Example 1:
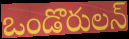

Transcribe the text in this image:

ఒండొరులన్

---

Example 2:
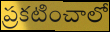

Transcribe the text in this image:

ప్రకటించాలో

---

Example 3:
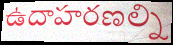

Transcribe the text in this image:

ఉదాహరణల్ని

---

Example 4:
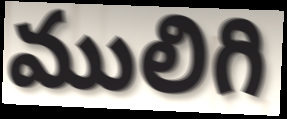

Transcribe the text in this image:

ములిగి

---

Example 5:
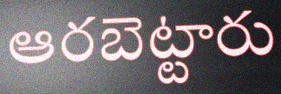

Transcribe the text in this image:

ఆరబెట్టారు